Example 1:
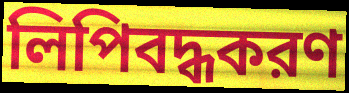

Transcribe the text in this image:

লিপিবদ্ধকরণ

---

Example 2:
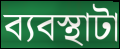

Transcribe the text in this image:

ব্যবস্থাটা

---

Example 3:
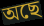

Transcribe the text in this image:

অছে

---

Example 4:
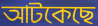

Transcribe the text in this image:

আটকেছে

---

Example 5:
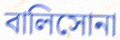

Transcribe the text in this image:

বালিসোনা